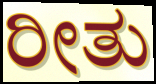
ರೀತು